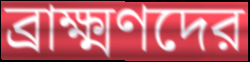
ব্রাক্ষ্মণদের